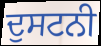
ਦੁਸਟਨੀ